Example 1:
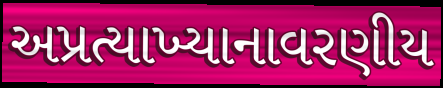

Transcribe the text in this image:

અપ્રત્યાખ્યાનાવરણીય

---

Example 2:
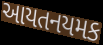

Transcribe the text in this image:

આયતનયમક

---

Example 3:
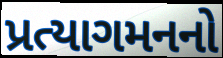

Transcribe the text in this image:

પ્રત્યાગમનનો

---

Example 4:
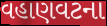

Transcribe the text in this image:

વહાણવટના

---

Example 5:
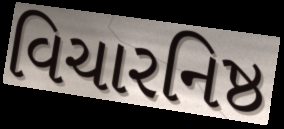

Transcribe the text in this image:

વિચારનિષ્ઠ